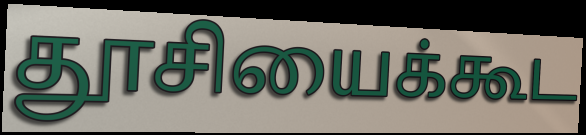
தூசியைக்கூட